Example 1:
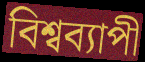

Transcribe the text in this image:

বিশ্বব্যাপী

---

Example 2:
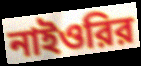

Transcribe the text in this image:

নাইওরির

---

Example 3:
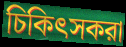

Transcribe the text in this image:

চিকিৎসকরা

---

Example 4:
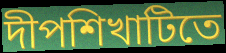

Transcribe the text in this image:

দীপশিখাটিতে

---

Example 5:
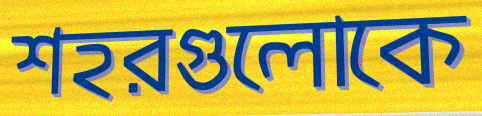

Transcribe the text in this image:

শহরগুলোকে